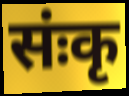
संःकृ